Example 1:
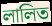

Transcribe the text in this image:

লালিত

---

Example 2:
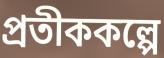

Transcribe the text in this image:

প্রতীককল্পে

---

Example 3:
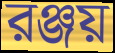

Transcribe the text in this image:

রঞ্জয়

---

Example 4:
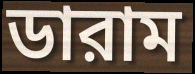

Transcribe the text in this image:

ডারাম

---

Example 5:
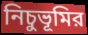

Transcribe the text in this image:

নিচুভূমির